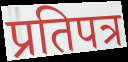
प्रतिपत्र